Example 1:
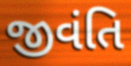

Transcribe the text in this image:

જીવંતિ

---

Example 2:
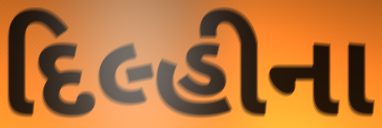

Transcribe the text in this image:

દિલ્હીના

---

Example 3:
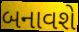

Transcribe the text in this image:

બનાવશે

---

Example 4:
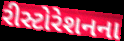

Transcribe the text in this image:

રીસ્ટોરેશનના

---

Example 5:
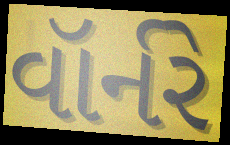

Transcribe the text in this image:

વૉર્નરે